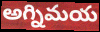
అగ్నిమయ